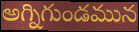
అగ్నిగుండమున